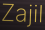
Zajil